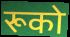
रूको